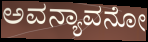
ಅವನ್ಯಾವನೋ